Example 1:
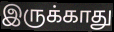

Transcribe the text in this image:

இருக்காது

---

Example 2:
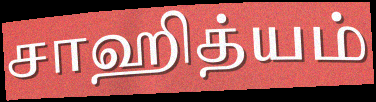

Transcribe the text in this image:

சாஹித்யம்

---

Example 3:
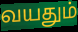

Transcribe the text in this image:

வயதும்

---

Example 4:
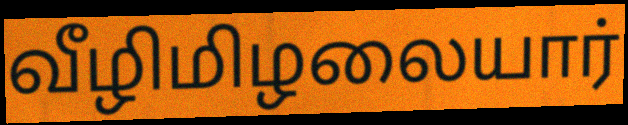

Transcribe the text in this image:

வீழிமிழலையார்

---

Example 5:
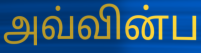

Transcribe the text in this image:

அவ்வின்ப